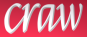
craw